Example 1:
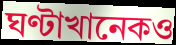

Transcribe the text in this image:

ঘণ্টাখানেকও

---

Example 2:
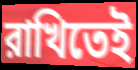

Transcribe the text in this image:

রাখিতেই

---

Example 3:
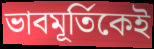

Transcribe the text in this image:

ভাবমূর্তিকেই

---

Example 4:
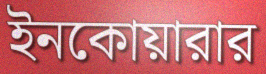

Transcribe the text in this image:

ইনকোয়ারার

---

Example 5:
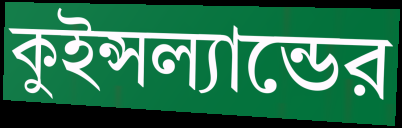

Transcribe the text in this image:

কুইন্সল্যান্ডের